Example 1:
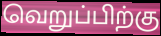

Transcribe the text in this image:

வெறுப்பிற்கு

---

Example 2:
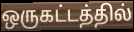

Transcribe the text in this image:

ஒருகட்டத்தில்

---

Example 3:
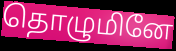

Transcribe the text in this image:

தொழுமினே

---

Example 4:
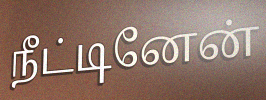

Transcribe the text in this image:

நீட்டினேன்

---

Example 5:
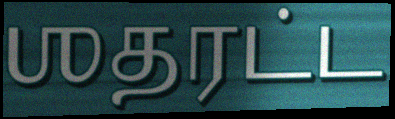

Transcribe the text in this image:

ஶதரட்ட